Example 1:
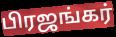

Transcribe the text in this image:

பிரஜங்கர்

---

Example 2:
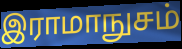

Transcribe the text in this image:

இராமாநுசம்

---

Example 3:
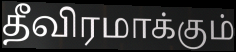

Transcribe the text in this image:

தீவிரமாக்கும்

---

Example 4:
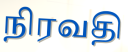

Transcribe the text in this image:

நிரவதி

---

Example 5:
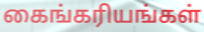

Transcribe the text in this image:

கைங்கரியங்கள்